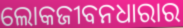
ଲୋକଜୀବନଧାରାର